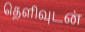
தெளிவுடன்